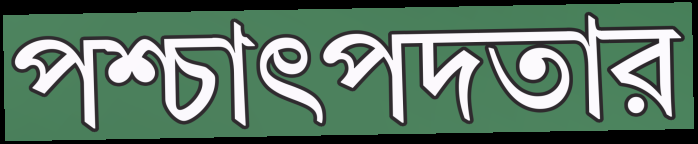
পশ্চাৎপদতার